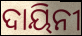
ଦାୟିନୀ